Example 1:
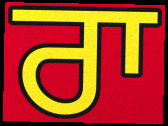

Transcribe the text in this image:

ਰਾ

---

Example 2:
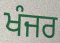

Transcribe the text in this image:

ਖੰਜਰ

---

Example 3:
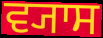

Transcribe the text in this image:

ਵ੍ਯਾਸ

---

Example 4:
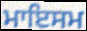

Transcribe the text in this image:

ਮਾਇਸਮ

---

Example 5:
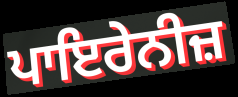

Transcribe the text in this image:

ਪਾਇਰੇਨੀਜ਼